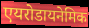
एयरोडायनेमिक